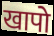
खापो